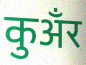
कुअँर